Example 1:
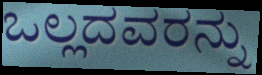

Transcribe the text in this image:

ಒಲ್ಲದವರನ್ನು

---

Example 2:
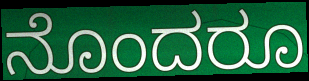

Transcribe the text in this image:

ನೊಂದರೂ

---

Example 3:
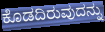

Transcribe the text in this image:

ಕೊಡದಿರುವುದನ್ನು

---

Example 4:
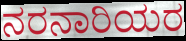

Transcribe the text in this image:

ನರನಾರಿಯರ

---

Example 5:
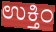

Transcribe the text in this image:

ಉಕ್ತಿಂ